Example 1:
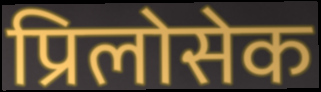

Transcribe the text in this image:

प्रिलोसेक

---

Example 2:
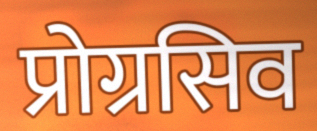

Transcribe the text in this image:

प्रोग्रसिव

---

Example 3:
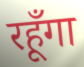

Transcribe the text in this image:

रहूँगा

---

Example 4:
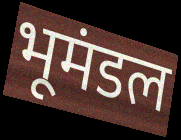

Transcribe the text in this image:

भूमंडल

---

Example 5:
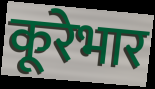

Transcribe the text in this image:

कूरेभार